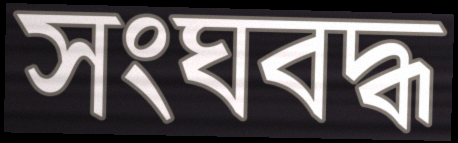
সংঘবদ্ধ